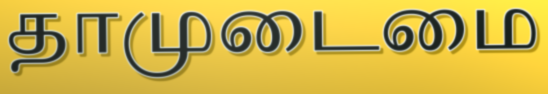
தாமுடைமை